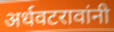
अर्धवटरावांनी